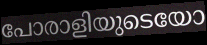
പോരാളിയുടെയോ